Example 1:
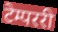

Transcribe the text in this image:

टेम्पररी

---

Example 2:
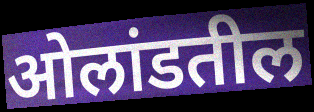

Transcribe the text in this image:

ओलांडतील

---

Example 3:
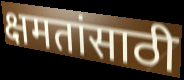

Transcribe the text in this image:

क्षमतांसाठी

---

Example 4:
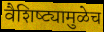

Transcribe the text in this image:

वैशिष्ट्यामुळेच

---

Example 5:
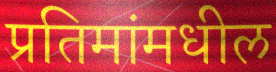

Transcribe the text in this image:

प्रतिमांमधील